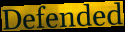
Defended